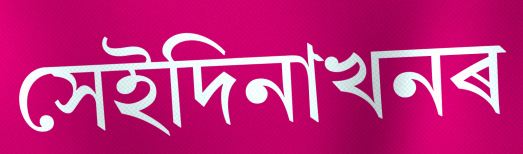
সেইদিনাখনৰ